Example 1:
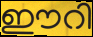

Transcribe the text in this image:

ഈറി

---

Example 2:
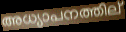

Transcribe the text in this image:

അധ്യാപനത്തില്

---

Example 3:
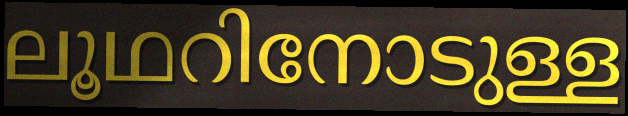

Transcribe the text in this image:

ലൂഥറിനോടുള്ള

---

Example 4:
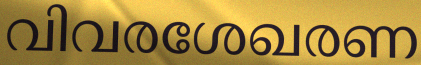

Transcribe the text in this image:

വിവരശേഖരണ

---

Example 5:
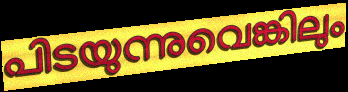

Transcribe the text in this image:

പിടയുന്നുവെങ്കിലും